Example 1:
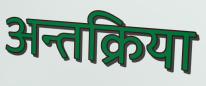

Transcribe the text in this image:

अन्तक्रिया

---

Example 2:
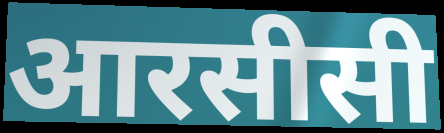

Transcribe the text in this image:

आरसीसी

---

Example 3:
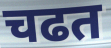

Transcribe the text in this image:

चढत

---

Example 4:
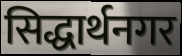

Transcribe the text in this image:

सिद्धार्थनगर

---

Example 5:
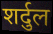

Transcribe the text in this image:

शर्दुल